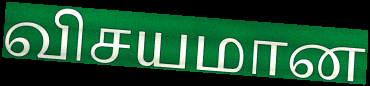
விசயமான